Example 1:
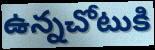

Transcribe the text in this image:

ఉన్నచోటుకి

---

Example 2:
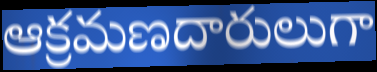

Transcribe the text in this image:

ఆక్రమణదారులుగా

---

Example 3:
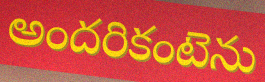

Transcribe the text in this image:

అందరికంటెను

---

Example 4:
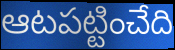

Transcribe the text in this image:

ఆటపట్టించేది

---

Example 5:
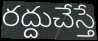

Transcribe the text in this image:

రద్దుచేస్తే